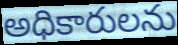
అధికారులను